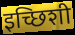
इच्छिशी